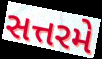
સત્તરમે